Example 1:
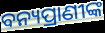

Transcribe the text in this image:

ବନ୍ୟପ୍ରାଣୀଙ୍କ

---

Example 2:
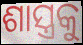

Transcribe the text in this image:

ଶାସ୍ତ୍ରକୁ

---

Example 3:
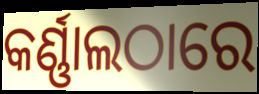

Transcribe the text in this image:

କର୍ଣ୍ଣାଲଠାରେ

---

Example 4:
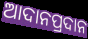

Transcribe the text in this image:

ଆଦାନପ୍ରଦାନ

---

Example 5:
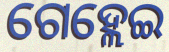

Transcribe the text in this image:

ଗେହ୍ଲେଇ